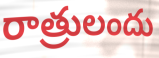
రాత్రులందు